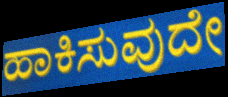
ಹಾಕಿಸುವುದೇ